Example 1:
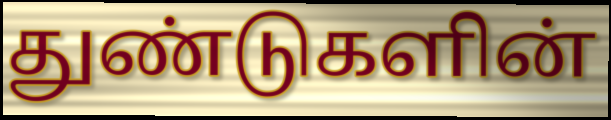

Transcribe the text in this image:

துண்டுகளின்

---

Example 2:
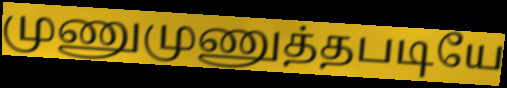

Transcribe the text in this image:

முணுமுணுத்தபடியே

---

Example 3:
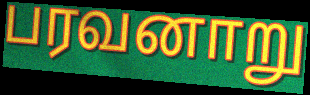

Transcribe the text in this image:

பரவனாறு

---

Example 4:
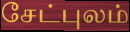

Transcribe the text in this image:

சேட்புலம்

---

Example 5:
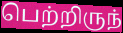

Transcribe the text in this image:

பெற்றிருந்